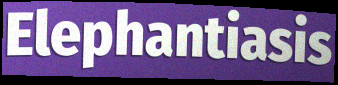
Elephantiasis